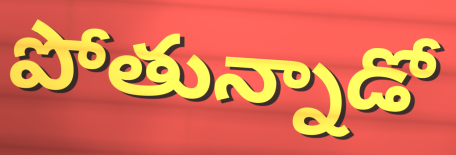
పోతున్నాడో